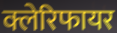
क्लेरिफायर